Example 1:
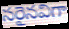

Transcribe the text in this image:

సరైనవిగా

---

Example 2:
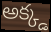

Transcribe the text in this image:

అక్క్డ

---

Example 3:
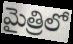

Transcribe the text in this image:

మైత్రిలో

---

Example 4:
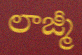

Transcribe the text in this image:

లాజ్మీ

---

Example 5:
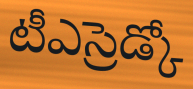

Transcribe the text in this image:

టీఎస్రెడ్కో